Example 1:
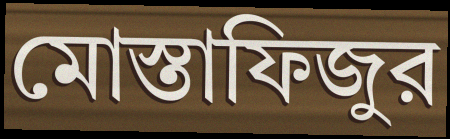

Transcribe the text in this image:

মোস্তাফিজুর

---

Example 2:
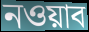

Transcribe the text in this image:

নওয়াব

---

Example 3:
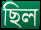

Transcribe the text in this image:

ছিল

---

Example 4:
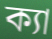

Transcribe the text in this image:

ক্যা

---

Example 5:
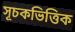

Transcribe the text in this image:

সূচকভিত্তিক